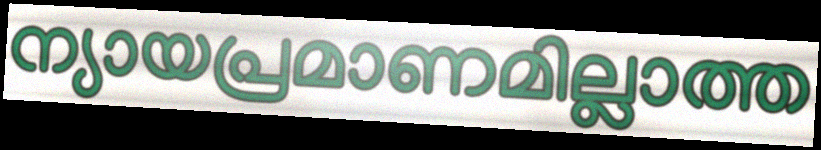
ന്യായപ്രമാണമില്ലാത്ത